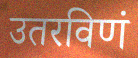
उतरविणं